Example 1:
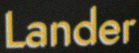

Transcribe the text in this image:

Lander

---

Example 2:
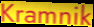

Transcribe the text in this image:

Kramnik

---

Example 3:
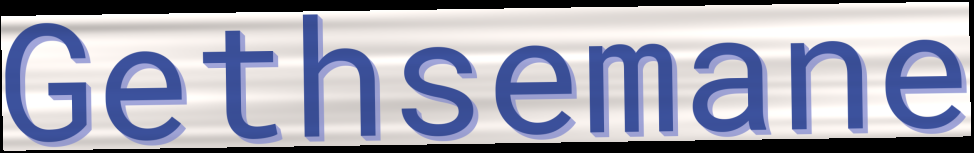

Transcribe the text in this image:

Gethsemane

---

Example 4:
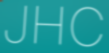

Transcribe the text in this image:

JHC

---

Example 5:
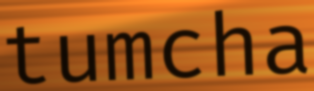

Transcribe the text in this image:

tumcha